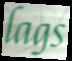
lags